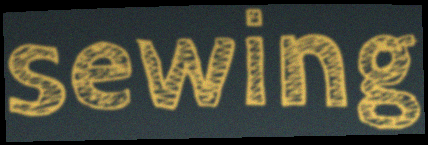
sewing